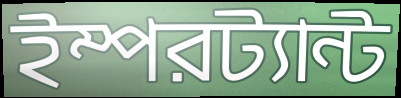
ইম্পরট্যান্ট